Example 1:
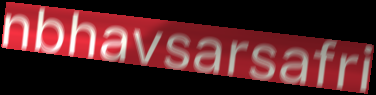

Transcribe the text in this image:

nbhavsarsafri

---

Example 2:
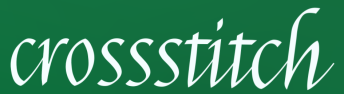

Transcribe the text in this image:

crossstitch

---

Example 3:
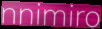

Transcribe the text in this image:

nnimiro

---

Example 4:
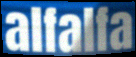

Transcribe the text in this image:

alfalfa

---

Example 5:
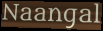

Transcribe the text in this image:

Naangal